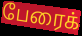
பேரைக்